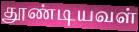
தூண்டியவள்